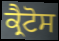
ਕ੍ਰੈਟੋਸ